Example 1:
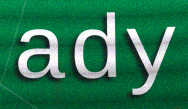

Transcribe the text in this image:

ady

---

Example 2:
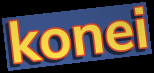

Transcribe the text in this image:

konei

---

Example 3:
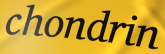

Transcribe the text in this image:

chondrin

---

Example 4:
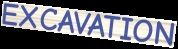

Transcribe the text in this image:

EXCAVATION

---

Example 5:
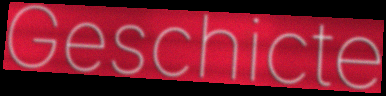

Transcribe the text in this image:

Geschicte